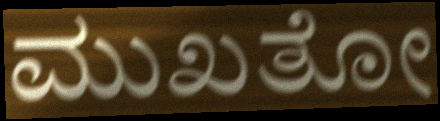
ಮುಖತೋ